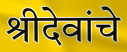
श्रीदेवांचे